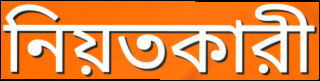
নিয়তকারী